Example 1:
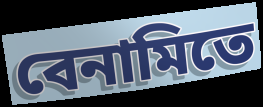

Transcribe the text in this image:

বেনামিতে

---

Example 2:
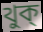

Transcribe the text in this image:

থুক্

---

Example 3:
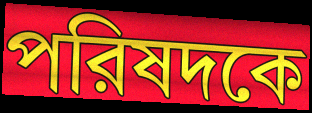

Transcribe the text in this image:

পরিষদকে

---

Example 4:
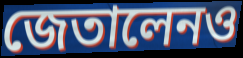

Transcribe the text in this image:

জেতালেনও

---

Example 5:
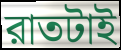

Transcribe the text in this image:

রাতটাই